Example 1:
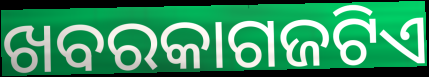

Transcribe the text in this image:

ଖବରକାଗଜଟିଏ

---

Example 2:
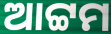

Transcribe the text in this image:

ଆଟ୍ଟମ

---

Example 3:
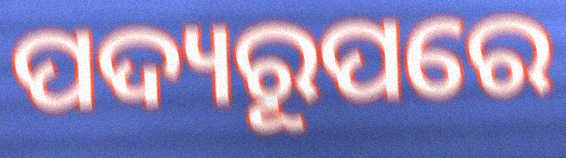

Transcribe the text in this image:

ପଦ୍ୟରୂପରେ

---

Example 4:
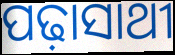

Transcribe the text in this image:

ପଢ଼ାସାଥୀ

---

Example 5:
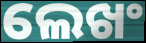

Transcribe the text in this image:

ଲେଖଂ